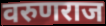
वरुणराज